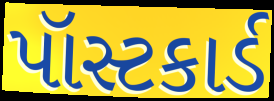
પૉસ્ટકાર્ડ